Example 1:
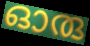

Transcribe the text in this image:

ഓരു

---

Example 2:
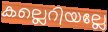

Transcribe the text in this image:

കല്ലെറിയല്ലേ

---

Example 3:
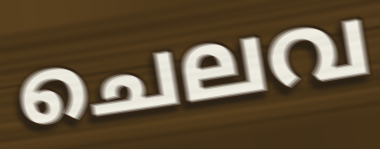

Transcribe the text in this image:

ചെലവ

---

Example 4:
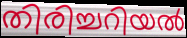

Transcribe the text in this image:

തിരിച്ചറിയൽ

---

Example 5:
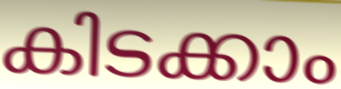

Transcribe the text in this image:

കിടക്കാം